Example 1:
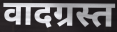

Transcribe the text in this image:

वादग्रस्त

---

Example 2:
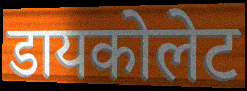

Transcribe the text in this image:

डायकोलेट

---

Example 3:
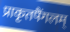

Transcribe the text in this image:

प्राकृतपैंगलम्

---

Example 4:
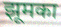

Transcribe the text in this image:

झूमका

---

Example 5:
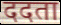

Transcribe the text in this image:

ददता